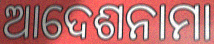
ଆଦେଶନାମା